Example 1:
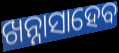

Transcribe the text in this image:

ଖନ୍ନାସାହେବ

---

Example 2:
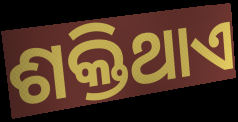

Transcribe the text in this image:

ଶକ୍ତିଥାଏ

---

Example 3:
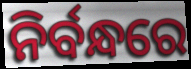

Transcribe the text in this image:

ନିର୍ବନ୍ଧରେ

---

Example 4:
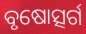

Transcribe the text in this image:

ବୃଷୋତ୍ସର୍ଗ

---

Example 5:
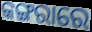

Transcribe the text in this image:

କଙ୍ଗରାରେ